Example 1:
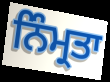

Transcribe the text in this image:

ਨਿੰਮ੍ਰਤਾ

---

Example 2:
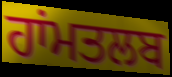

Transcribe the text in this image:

ਹਾਂਮਤਲਬ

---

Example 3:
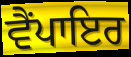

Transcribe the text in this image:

ਵੈਂਪਾਇਰ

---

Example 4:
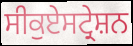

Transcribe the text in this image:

ਸੀਕੁਏਸਟ੍ਰੇਸ਼ਨ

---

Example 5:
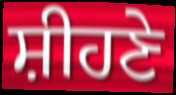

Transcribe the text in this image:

ਸ਼ੀਹਣੇ